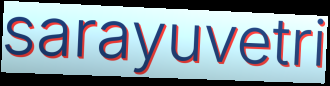
sarayuvetri